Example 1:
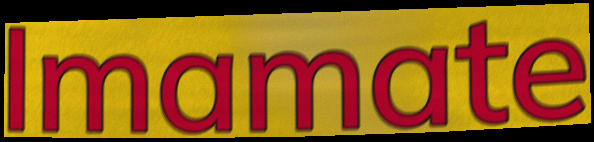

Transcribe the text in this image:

Imamate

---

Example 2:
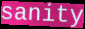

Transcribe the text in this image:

sanity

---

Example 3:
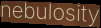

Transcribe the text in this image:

nebulosity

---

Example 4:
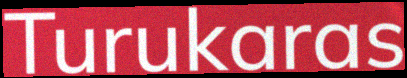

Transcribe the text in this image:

Turukaras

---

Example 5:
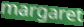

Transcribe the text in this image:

margaret